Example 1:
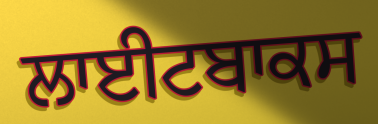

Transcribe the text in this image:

ਲਾਈਟਬਾਕਸ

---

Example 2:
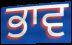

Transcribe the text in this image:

ਭਾਵ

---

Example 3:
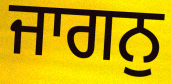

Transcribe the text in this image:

ਜਾਗਨੁ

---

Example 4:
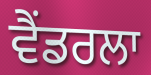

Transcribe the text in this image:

ਵੈਂਡਰਲਾ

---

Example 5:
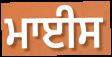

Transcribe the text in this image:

ਮਾਈਸ